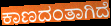
ಕಾಣದಂತಾಗಿದೆ